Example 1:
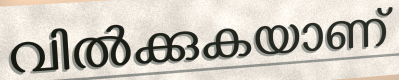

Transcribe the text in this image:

വിൽക്കുകയാണ്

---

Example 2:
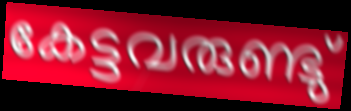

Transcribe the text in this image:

കേട്ടവരുണ്ടു്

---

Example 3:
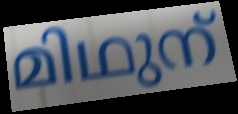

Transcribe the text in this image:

മിഥുന്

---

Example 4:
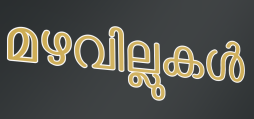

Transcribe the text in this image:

മഴവില്ലുകൾ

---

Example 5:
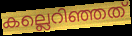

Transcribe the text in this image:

കല്ലെറിഞ്ഞത്